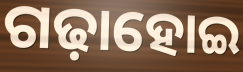
ଗଢ଼ାହୋଇ